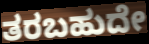
ತರಬಹುದೇ